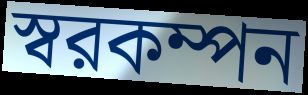
স্বরকম্পন